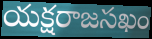
యక్షరాజసఖం